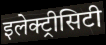
इलेक्ट्रीसिटी